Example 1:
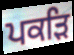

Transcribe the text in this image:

ਪਕੜਿ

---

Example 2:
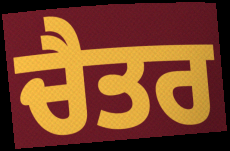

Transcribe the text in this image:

ਚੈਤਰ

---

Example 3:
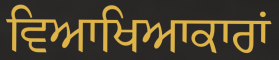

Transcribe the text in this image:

ਵਿਆਖਿਆਕਾਰਾਂ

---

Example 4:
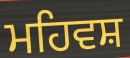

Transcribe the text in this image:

ਮਹਿਵਸ਼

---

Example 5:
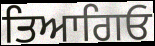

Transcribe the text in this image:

ਤਿਆਗਿਓ